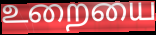
உறையை